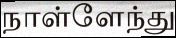
நாள்ளேந்து